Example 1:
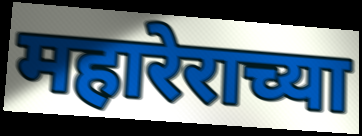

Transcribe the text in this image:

महारेराच्या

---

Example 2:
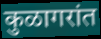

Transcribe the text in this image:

कुळागरांत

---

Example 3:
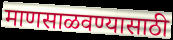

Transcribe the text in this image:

माणसाळवण्यासाठी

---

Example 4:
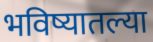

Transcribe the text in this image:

भविष्यातल्या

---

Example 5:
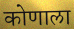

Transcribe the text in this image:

कोणाला